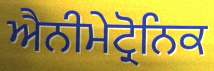
ਐਨੀਮੇਟ੍ਰੋਨਿਕ